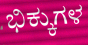
ಭಿಕ್ಕುಗಳ